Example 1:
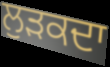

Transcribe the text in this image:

ਲੁੜਕਦਾ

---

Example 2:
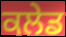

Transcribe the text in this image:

ਕਲੇਡ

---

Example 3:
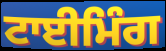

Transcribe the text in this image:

ਟਾਈਮਿੰਗ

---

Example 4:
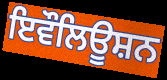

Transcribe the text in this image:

ਇਵੌਲਿਊਸ਼ਨ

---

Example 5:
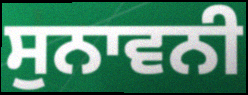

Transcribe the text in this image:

ਸੁਨਾਵਨੀ